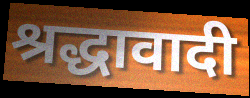
श्रद्धावादी